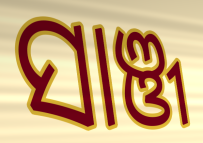
ସାଞ୍ଜ